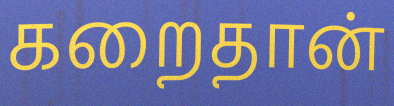
கறைதான்